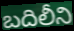
బదిలీని